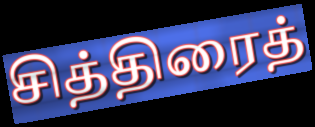
சித்திரைத்